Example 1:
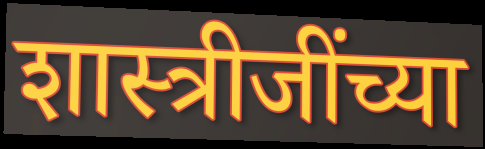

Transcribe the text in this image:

शास्त्रीजींच्या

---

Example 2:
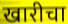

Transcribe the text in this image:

खारीचा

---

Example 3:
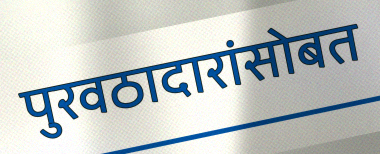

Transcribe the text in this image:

पुरवठादारांसोबत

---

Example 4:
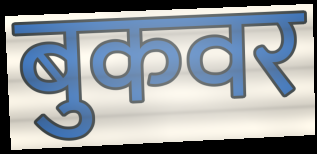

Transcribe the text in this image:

बुकवर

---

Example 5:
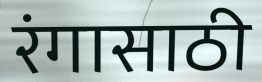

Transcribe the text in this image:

रंगासाठी